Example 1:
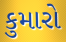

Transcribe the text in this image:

કુમારો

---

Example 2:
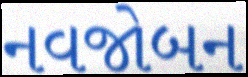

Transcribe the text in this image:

નવજોબન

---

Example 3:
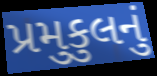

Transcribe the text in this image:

પ્રમુકુલનું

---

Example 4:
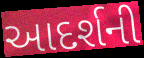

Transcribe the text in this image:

આદર્શની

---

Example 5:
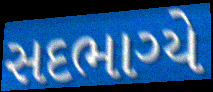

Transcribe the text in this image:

સદભાગ્યે